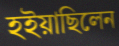
হইয়াছিলেন